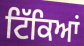
ਟਿੱਕਿਆਂ